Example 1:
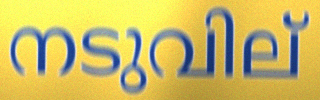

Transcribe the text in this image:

നടുവില്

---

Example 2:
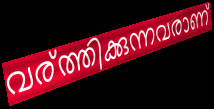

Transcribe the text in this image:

വര്ത്തിക്കുന്നവരാണ്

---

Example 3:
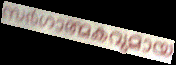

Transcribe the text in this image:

സർഗാത്മകവുമായ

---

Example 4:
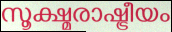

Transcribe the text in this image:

സൂക്ഷ്മരാഷ്ട്രീയം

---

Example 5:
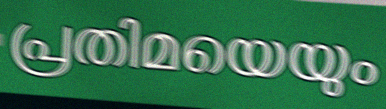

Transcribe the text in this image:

പ്രതിമയെയും